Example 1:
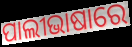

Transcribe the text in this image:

ପାଲୀଭାଷାରେ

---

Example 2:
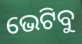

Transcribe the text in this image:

ଭେଟିବୁ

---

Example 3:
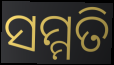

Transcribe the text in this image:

ସମ୍ମତି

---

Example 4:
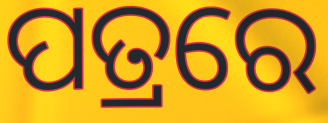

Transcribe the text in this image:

ପତ୍ରରେ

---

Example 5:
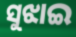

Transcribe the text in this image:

ସୁଝାଇ